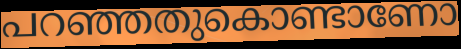
പറഞ്ഞതുകൊണ്ടാണോ